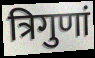
त्रिगुणां